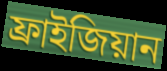
ফ্রাইজিয়ান